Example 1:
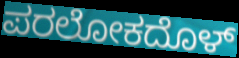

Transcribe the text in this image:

ಪರಲೋಕದೊಳ್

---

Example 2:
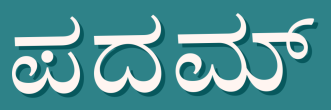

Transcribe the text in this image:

ಪದಮ್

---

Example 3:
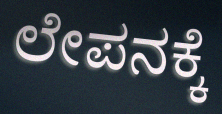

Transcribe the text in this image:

ಲೇಪನಕ್ಕೆ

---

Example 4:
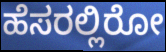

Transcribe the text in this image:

ಹೆಸರಲ್ಲಿರೋ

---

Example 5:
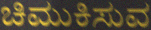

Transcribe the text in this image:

ಚಿಮುಕಿಸುವ